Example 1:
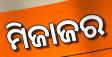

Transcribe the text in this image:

ମିଜାଜର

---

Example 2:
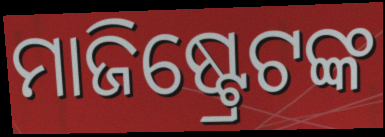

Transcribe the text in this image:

ମାଜିଷ୍ଟ୍ରେଟଙ୍କ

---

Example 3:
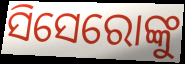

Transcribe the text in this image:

ସିସେରୋଙ୍କୁ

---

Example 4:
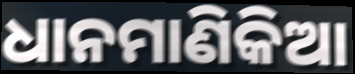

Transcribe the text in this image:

ଧାନମାଣିକିଆ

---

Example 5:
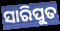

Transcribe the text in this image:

ସାରିପୁତ